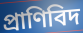
প্রাণিবিদ